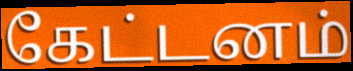
கேட்டனம்